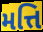
મત્તિ